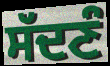
ਸੱਦਣੰ